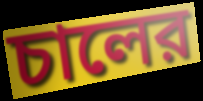
চালের